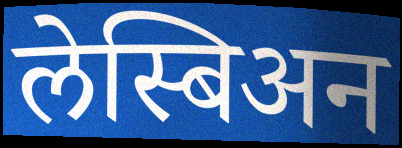
लेस्बिअन